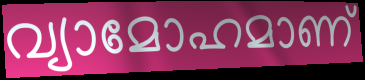
വ്യാമോഹമാണ്